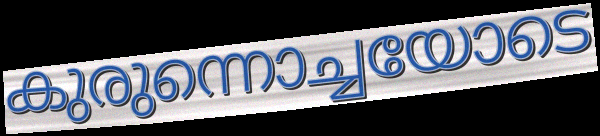
കുരുന്നൊച്ചയോടെ